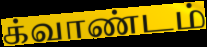
க்வாண்டம்